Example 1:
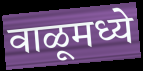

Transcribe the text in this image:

वाळूमध्ये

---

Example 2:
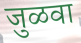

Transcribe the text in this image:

जुळवा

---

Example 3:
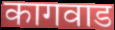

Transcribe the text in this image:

कागवाड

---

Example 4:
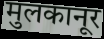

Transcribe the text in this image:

मुलकानूर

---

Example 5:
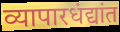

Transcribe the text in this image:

व्यापारधंद्यांत